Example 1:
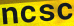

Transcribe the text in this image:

ncsc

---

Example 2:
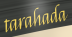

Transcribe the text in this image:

tarahada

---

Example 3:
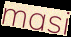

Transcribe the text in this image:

masi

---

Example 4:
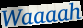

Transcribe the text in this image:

Waaaah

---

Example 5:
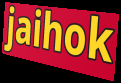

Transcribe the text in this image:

jaihok